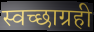
स्वच्छाग्रही